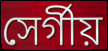
সের্গীয়